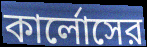
কার্লোসের